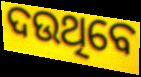
ଦଉଥିବେ